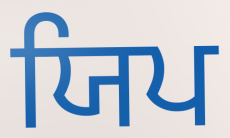
ਯਿਪ